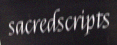
sacredscripts